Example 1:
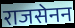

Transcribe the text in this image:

राजसेनन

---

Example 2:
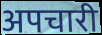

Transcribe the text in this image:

अपचारी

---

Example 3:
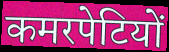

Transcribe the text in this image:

कमरपेटियों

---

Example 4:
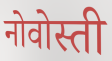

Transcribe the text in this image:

नोवोस्ती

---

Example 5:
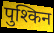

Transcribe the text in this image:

पुश्किन